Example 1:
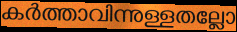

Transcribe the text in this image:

കർത്താവിന്നുള്ളതല്ലോ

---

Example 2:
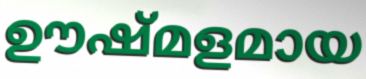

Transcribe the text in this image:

ഊഷ്മളമായ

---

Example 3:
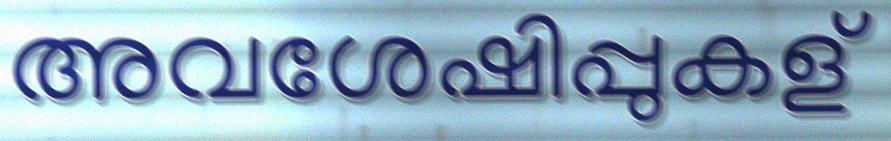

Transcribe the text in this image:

അവശേഷിപ്പുകള്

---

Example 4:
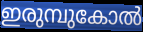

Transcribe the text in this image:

ഇരുമ്പുകോൽ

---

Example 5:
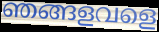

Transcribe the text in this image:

ഞങ്ങളവളെ